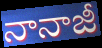
నానాజీ